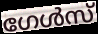
ഗേൾസ്